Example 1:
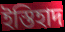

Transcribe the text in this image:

ইস্তিহাদ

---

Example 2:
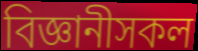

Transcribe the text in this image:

বিজ্ঞানীসকল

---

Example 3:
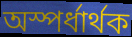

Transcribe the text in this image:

অস্পৰ্ধাৰ্থক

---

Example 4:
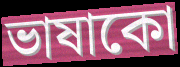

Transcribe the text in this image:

ভাষাকো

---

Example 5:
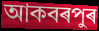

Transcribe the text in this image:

আকবৰপুৰ